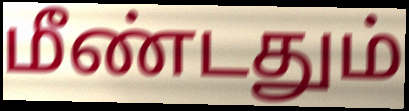
மீண்டதும்